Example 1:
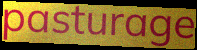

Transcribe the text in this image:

pasturage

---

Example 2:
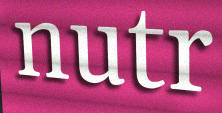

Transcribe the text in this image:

nutr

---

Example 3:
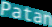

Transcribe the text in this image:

Patan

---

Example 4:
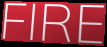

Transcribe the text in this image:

FIRE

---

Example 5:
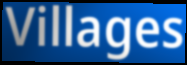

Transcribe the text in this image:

Villages